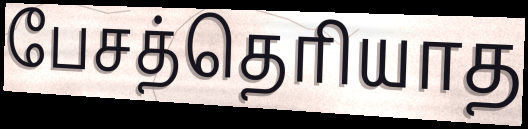
பேசத்தெரியாத